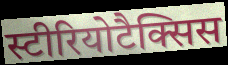
स्टीरियोटैक्सिस